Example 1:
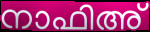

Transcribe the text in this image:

നാഫിഅ്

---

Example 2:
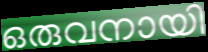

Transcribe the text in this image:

ഒരുവനായി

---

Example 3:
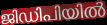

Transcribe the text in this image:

ജിഡിപിയിൽ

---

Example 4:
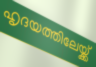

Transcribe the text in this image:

ഹൃദയത്തിലേയ്ക്ക്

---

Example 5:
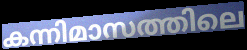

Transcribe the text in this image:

കന്നിമാസത്തിലെ